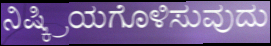
ನಿಷ್ಕ್ರಿಯಗೊಳಿಸುವುದು